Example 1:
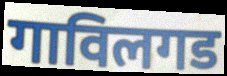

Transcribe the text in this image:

गाविलगड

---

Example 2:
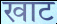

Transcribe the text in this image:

खाट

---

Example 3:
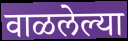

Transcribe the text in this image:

वाळलेल्या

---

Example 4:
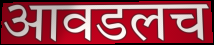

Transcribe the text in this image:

आवडलच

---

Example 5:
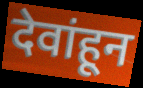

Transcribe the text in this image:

देवांहून